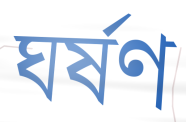
ঘৰ্ষণ